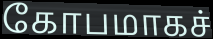
கோபமாகச்